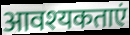
आवश्‍यकताएं